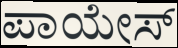
ಪಾಯೇಸ್